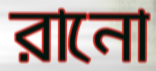
রানো